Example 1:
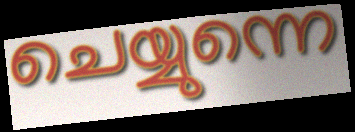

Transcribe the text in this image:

ചെയ്യുന്നെ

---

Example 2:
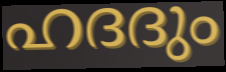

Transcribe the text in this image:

ഹദദും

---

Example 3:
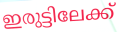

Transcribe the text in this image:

ഇരുട്ടിലേക്ക്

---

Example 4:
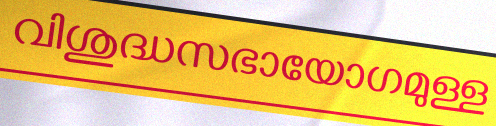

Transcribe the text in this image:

വിശുദ്ധസഭായോഗമുള്ള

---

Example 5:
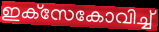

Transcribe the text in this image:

ഇക്‌സേകോവിച്ച്